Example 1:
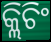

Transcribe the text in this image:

କ୍ଲିଚିଂ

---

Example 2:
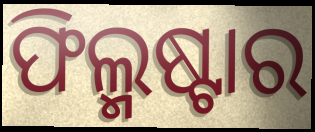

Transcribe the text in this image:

ଫିଲ୍ମଷ୍ଟାର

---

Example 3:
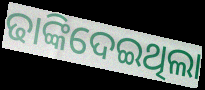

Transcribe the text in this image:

ଢାଙ୍କିଦେଇଥିଲା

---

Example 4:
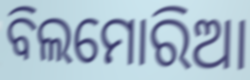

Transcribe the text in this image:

ବିଲମୋରିଆ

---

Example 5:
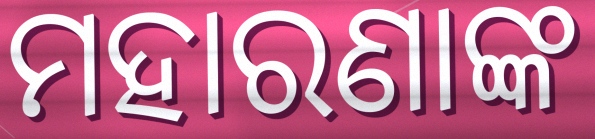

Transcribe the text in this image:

ମହାରଣାଙ୍କ